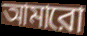
আমারো